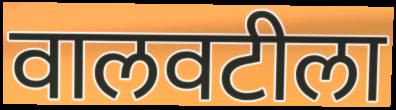
वालवटीला